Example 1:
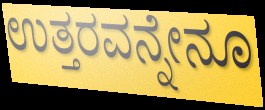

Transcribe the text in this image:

ಉತ್ತರವನ್ನೇನೂ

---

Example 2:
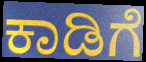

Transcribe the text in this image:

ಕಾಡಿಗೆ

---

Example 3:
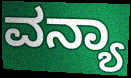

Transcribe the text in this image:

ವನ್ಯಾ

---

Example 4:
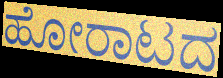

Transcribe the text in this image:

ಹೋರಾಟದ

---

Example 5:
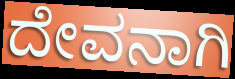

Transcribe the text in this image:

ದೇವನಾಗಿ